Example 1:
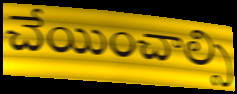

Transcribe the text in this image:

చేయించాల్సి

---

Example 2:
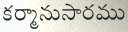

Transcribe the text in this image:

కర్మానుసారము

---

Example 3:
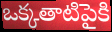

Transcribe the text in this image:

ఒక్కతాటిపైకి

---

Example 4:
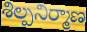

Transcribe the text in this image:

శిల్పనిర్మాణ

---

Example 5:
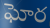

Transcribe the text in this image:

ఘోర